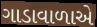
ગાડાવાળાએ